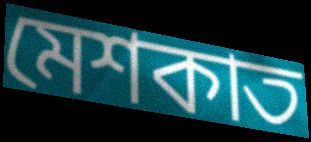
মেশকাত